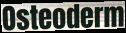
Osteoderm